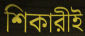
শিকারীই